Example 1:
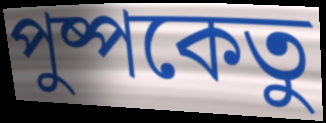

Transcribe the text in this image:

পুষ্পকেতু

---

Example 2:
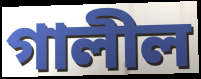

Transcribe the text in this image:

গালীল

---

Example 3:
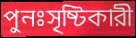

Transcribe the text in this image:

পুনঃসৃষ্টিকারী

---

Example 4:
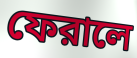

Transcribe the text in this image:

ফেরালে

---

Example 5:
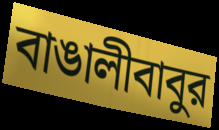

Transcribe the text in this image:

বাঙালীবাবুর